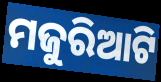
ମଜୁରିଆଟି